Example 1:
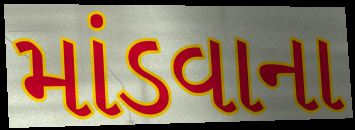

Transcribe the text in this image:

માંડવાના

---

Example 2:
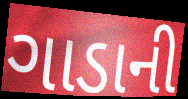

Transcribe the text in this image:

ગાડાની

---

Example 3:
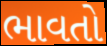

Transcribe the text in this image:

ભાવતો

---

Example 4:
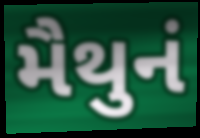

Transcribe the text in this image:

મૈથુનં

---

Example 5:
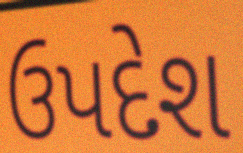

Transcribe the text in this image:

ઉપદેશ